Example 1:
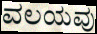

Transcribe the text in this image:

ವಲಯವು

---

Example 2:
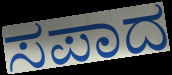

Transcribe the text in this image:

ಸಪಾದ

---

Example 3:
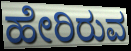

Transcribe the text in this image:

ಹೇರಿರುವ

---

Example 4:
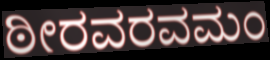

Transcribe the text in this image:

ಠೀರವರವಮಂ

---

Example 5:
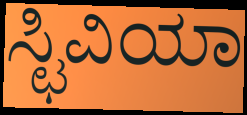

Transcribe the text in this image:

ಸ್ಟಿವಿಯಾ